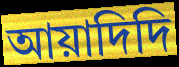
আয়াদিদি